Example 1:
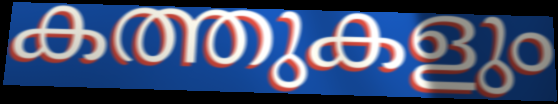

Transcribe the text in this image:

കത്തുകളും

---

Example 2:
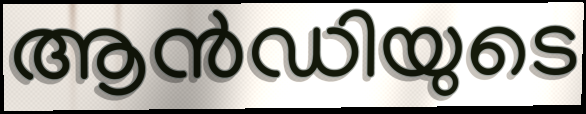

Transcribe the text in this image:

ആൻഡിയുടെ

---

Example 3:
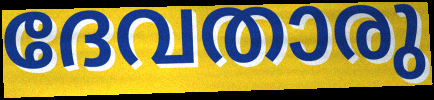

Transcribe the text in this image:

ദേവതാരു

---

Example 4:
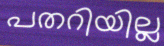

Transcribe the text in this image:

പതറിയില്ല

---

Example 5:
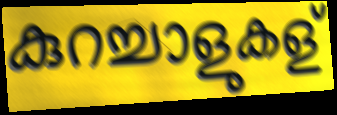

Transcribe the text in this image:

കുറച്ചാളുകള്